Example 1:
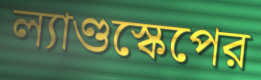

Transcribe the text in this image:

ল্যাণ্ডস্কেপের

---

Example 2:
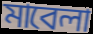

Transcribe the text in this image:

মাবেলা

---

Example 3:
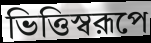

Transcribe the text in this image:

ভিত্তিস্বরূপে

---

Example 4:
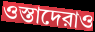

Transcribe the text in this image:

ওস্তাদেরাও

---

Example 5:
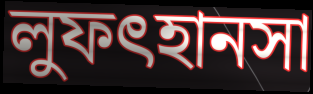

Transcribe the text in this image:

লুফৎহানসা